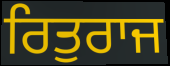
ਰਿਤੁਰਾਜ